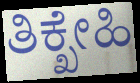
ತಿಕ್ಖೇಹಿ